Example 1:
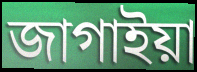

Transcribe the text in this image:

জাগাইয়া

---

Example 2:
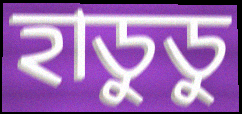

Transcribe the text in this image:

হাডুডু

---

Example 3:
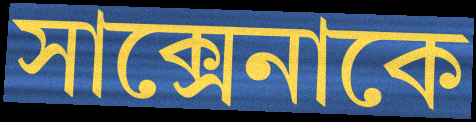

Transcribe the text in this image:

সাক্সেনাকে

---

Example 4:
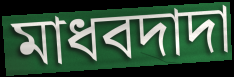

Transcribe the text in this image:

মাধবদাদা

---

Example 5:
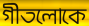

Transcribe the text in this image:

গীতলোকে